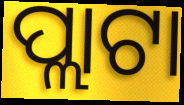
ପ୍ଲାଟା